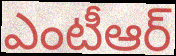
ఎంటీఆర్